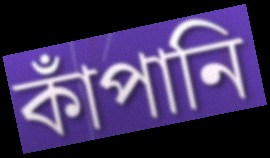
কাঁপানি